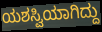
ಯಶಸ್ವಿಯಾಗಿದ್ದು